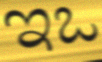
ಇಒ